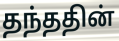
தந்ததின்